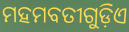
ମହମବତୀଗୁଡ଼ିଏ